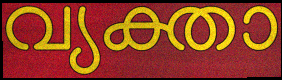
വ്യക്താ